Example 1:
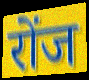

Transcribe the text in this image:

रोंज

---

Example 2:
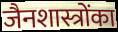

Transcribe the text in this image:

जैनशास्त्रोंका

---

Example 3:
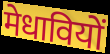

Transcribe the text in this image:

मेधावियों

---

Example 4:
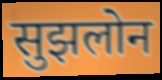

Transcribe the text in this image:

सुझलोन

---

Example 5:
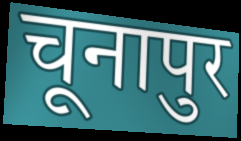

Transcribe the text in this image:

चूनापुर